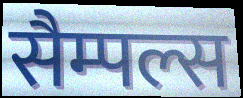
सैम्‍पल्‍स